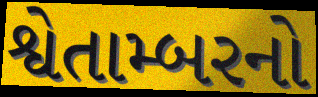
શ્વેતામ્બરનો